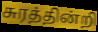
சுரத்தின்றி